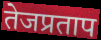
तेजप्रताप